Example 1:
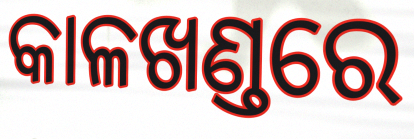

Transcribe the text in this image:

କାଳଖଣ୍ଡରେ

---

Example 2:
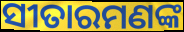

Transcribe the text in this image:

ସୀତାରମଣଙ୍କ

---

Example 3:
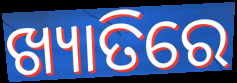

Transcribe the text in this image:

ଖ୍ୟାତିରେ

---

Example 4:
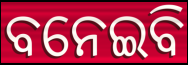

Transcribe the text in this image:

ବନେଇବି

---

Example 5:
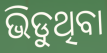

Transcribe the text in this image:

ଭିଡୁଥିବା